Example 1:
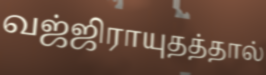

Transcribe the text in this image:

வஜ்ஜிராயுதத்தால்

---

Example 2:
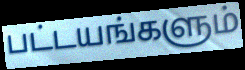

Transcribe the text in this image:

பட்டயங்களும்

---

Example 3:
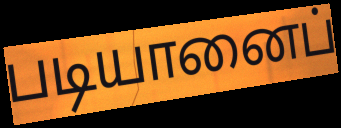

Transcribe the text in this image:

படியானைப்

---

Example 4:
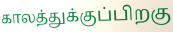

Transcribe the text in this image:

காலத்துக்குப்பிறகு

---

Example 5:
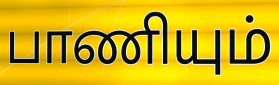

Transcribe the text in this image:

பாணியும்